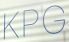
KPG